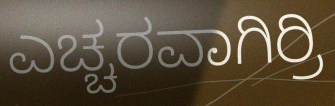
ಎಚ್ಚರವಾಗಿರ್ರಿ